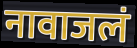
नावाजलं